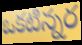
ఒకటిన్నర